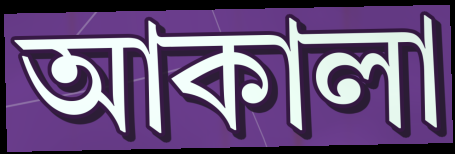
আকালা